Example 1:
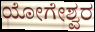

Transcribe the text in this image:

ಯೋಗೇಶ್ವರ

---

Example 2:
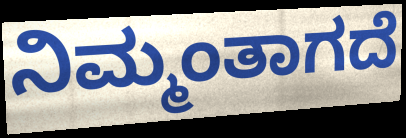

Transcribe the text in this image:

ನಿಮ್ಮಂತಾಗದೆ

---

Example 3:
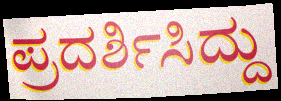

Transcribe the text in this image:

ಪ್ರದರ್ಶಿಸಿದ್ದು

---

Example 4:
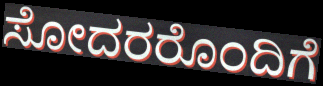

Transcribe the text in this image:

ಸೋದರರೊಂದಿಗೆ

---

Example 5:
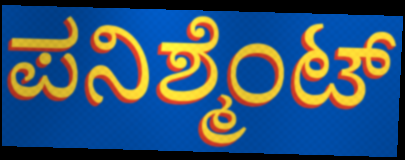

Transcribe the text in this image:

ಪನಿಶ್ಮೆಂಟ್